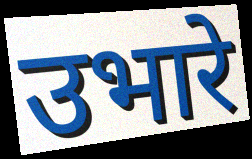
उभारे